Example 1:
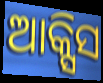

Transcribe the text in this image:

ଆକ୍ସିସ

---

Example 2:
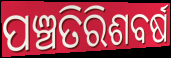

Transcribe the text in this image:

ପଞ୍ଚତିରିଶବର୍ଷ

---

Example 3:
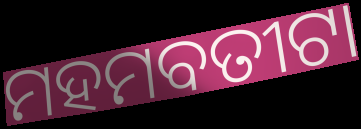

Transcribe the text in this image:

ମହମବତୀଟା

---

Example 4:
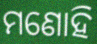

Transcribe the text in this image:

ମଣୋହି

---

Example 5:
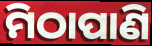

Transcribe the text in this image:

ମିଠାପାଣି